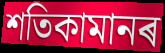
শতিকামানৰ